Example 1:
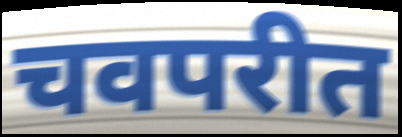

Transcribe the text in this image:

चवपरीत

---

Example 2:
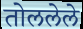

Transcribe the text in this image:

तोललेले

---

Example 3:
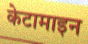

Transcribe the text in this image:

केटामाइन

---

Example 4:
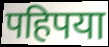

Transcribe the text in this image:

पहिपया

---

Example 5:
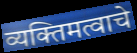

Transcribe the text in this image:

व्यक्तिमत्वाचे